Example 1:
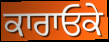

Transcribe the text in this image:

ਕਾਰਾਓਕੇ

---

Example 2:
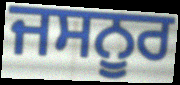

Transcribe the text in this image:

ਜਸਨੂਰ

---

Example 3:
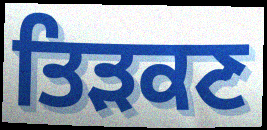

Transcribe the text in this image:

ਤਿੜਕਣ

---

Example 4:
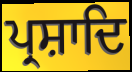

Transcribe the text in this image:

ਪ੍ਰਸ਼ਾਦਿ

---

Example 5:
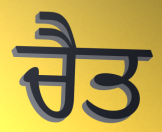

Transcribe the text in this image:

ਚੈਤ